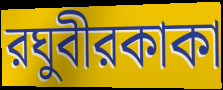
রঘুবীরকাকা